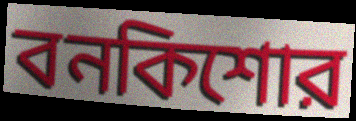
বনকিশোর